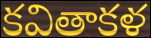
కవితాకళ